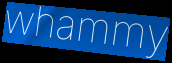
whammy